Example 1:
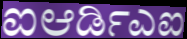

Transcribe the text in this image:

ಐಆರ್ಡಿಎಐ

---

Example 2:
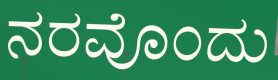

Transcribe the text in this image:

ನರವೊಂದು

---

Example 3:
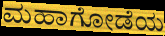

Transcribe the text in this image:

ಮಹಾಗೋಡೆಯ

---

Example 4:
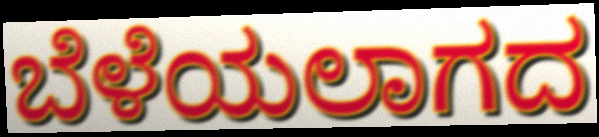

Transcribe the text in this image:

ಬೆಳೆಯಲಾಗದ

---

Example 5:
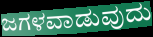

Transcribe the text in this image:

ಜಗಳವಾಡುವುದು